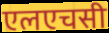
एलएचसी